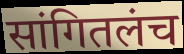
सांगितलंच